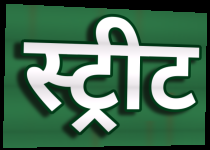
स्ट्रीट